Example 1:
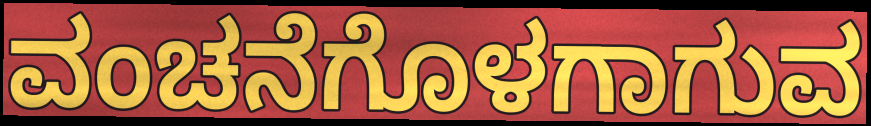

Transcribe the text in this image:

ವಂಚನೆಗೊಳಗಾಗುವ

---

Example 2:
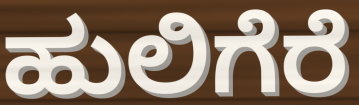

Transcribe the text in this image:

ಹುಲಿಗೆರೆ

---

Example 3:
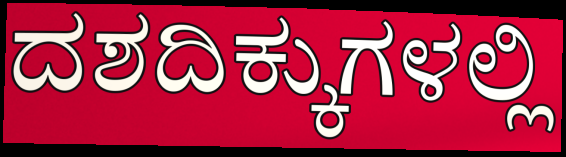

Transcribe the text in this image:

ದಶದಿಕ್ಕುಗಳಲ್ಲಿ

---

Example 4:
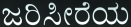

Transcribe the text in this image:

ಜರಿಸೀರೆಯ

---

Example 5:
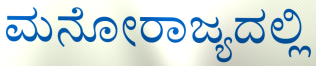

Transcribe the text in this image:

ಮನೋರಾಜ್ಯದಲ್ಲಿ